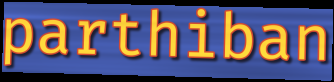
parthiban